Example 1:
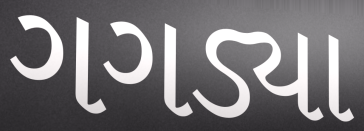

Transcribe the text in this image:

ગગડ્યા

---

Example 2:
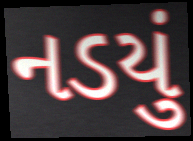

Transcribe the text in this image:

નડયું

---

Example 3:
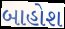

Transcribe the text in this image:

બાહોશ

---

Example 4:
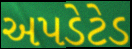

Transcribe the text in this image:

અપડેટેડ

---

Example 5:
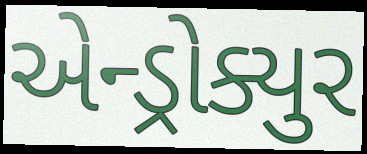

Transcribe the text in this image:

એન્ડ્રોક્યુર